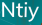
Ntiy